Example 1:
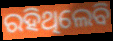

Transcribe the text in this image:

ରହିଥିଲେବି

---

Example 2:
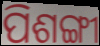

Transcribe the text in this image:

ପିଶଙ୍ଗୀ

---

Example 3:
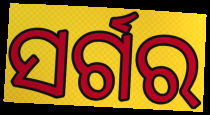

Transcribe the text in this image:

ସର୍ଗର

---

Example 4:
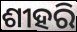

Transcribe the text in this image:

ଶୀହରି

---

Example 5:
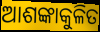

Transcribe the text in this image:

ଆଶଙ୍କାକୁଳିତ